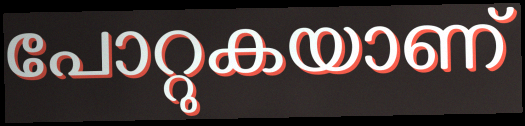
പോറ്റുകയാണ്